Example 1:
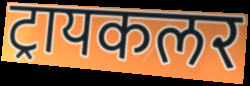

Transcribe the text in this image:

ट्रायकलर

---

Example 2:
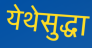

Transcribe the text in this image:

येथेसुद्धा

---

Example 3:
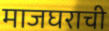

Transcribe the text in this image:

माजघराची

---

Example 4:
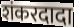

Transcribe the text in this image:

शंकरदादा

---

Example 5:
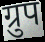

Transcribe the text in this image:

ग्रुप